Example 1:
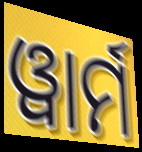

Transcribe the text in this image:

ୱାର୍ମ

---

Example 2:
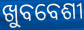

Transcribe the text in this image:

ଖୁବବେଶୀ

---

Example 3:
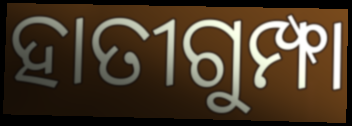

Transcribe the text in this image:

ହାତୀଗୁମ୍ଫା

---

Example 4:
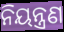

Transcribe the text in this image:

ନିୟନ୍ତ୍ରଣ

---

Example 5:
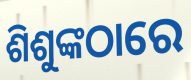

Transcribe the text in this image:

ଶିଶୁଙ୍କଠାରେ